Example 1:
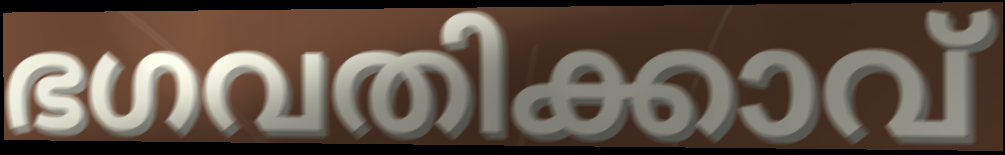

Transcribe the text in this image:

ഭഗവതിക്കാവ്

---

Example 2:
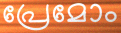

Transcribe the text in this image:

പ്രേമോം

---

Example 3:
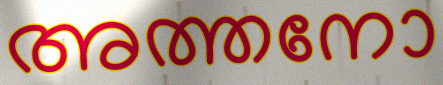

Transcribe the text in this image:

അത്തനോ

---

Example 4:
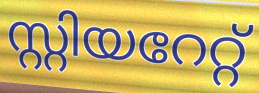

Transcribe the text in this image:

സ്റ്റിയറേറ്റ്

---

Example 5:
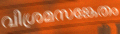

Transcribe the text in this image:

വിശ്രമസങ്കേതം